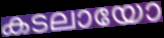
കടലായോ